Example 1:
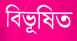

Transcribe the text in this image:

বিভূষিত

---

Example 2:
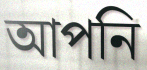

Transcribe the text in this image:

আপনি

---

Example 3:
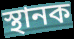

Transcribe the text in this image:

স্থানক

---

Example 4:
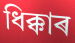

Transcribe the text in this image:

ধিক্কাৰ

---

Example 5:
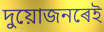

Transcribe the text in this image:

দুয়োজনৰেই